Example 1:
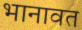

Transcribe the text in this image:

भानावत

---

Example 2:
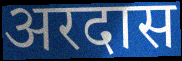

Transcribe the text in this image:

अरदास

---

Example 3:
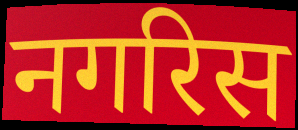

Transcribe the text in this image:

नगरिस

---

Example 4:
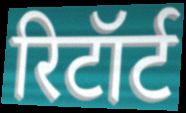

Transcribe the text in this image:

रिटॉर्ट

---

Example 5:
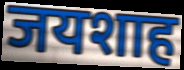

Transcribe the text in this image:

जयशाह